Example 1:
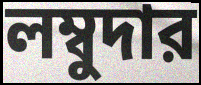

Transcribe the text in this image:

লম্বুদার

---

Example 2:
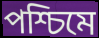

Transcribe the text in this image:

পশ্চিমে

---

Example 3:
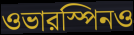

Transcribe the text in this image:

ওভারস্পিনও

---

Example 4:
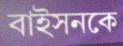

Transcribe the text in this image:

বাইসনকে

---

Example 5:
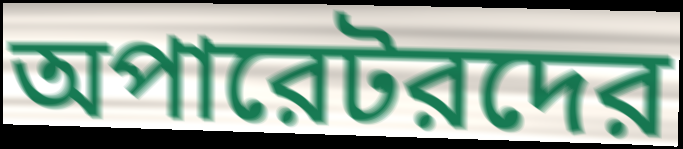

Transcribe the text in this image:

অপারেটরদের